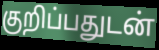
குறிப்பதுடன்